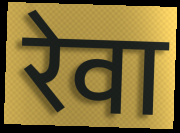
रेवा